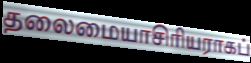
தலைமையாசிரியராகப்